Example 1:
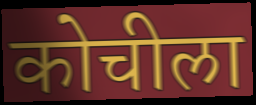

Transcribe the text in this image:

कोचीला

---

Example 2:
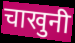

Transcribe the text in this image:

चाखुनी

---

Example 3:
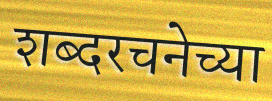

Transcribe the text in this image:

शब्दरचनेच्या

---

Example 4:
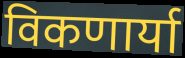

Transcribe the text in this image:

विकणार्या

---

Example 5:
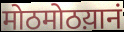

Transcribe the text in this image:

मोठमोठय़ानं